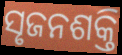
ସୃଜନଶକ୍ତି